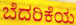
ಬೆದರಿಕೆಯ